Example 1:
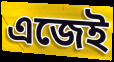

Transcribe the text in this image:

এজেই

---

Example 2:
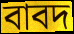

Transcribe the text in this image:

বাবদ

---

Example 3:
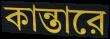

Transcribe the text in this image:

কান্তারে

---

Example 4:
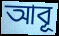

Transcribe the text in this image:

আবূ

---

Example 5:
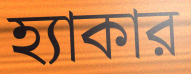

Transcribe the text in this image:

হ্যাকার